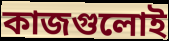
কাজগুলোই